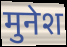
मुनेश